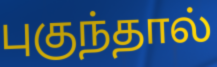
புகுந்தால்